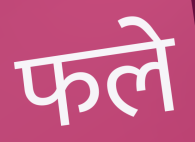
फले